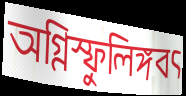
অগ্নিস্ফুলিঙ্গবৎ